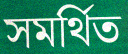
সমর্থিত